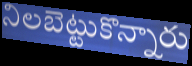
నిలబెట్టుకొన్నారు